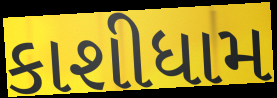
કાશીધામ